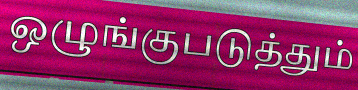
ஒழுங்குபடுத்தும்